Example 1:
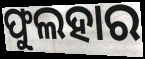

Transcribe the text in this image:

ଫୁଲହାର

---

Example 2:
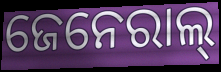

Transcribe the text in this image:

ଜେନେରାଲ୍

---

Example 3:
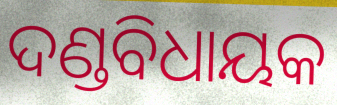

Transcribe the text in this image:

ଦଣ୍ଡବିଧାୟକ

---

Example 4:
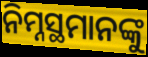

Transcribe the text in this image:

ନିମ୍ନସ୍ଥମାନଙ୍କୁ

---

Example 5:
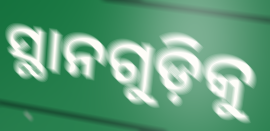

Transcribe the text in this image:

ସ୍ଥାନଗୁଡ଼ିକୁ